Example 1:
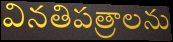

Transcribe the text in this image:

వినతిపత్రాలను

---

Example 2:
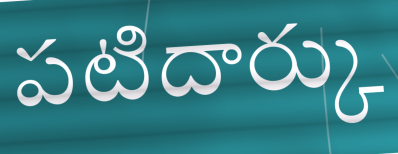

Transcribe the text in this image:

పటిదార్కు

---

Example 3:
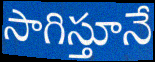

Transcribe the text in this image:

సాగిస్తూనే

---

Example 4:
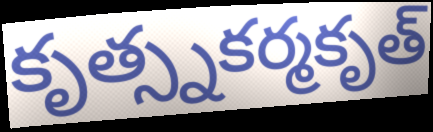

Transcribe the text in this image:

కృత్స్నకర్మకృత్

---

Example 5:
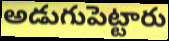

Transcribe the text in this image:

అడుగుపెట్టారు